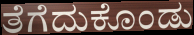
ತೆಗೆದುಕೊಂಡು